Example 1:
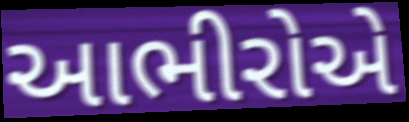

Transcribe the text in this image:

આભીરોએ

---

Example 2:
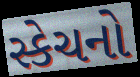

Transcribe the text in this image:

સ્કેચનો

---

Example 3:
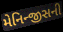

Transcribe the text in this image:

મેનિન્જીસની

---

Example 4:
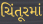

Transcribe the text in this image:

ચિંતૂરમાં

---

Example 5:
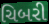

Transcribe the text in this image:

ચિબરી